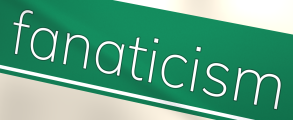
fanaticism